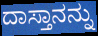
ದಾಸ್ತಾನನ್ನು